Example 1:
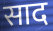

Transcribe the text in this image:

साद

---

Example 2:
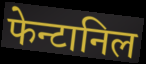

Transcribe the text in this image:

फेन्टानिल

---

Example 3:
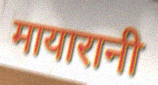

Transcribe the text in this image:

मायारानी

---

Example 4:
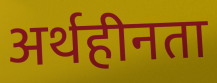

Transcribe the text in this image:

अर्थहीनता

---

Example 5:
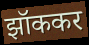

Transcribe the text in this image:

झॉककर